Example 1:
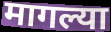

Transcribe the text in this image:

मागल्या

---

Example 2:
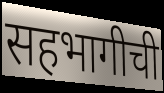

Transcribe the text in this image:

सहभागीची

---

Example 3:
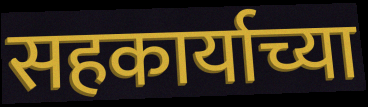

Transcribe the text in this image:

सहकार्याच्या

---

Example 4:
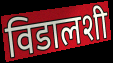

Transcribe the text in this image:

विडालशी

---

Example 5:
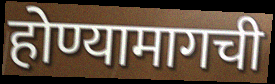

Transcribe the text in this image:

होण्यामागची